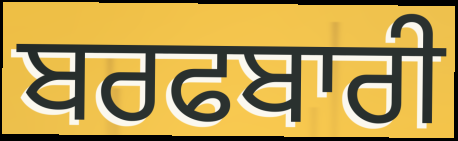
ਬਰਫਬਾਰੀ